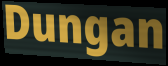
Dungan